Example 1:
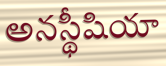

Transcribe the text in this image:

అనస్థీషియా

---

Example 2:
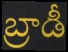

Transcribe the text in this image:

బ్రాడీ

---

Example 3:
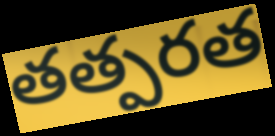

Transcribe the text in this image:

తత్పరత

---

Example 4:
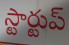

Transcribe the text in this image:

స్టార్టుప్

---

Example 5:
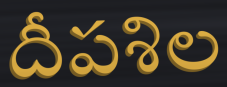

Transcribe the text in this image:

దీపశిల